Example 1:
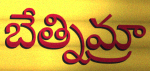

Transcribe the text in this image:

బేత్నిమ్రా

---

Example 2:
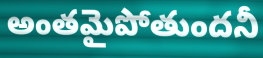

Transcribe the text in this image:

అంతమైపోతుందనీ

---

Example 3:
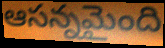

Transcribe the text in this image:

ఆసన్నమైంది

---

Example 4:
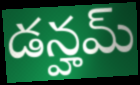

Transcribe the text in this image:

డన్హమ్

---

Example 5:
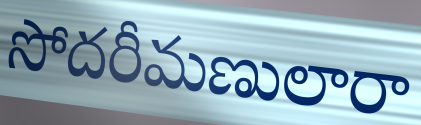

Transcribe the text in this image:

సోదరీమణులారా